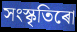
সংস্কৃতিৰো